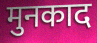
मुनकाद